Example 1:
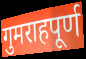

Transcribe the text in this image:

गुमराहपूर्ण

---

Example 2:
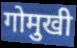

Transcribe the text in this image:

गोमुखी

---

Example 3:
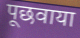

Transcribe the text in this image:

पूछवाया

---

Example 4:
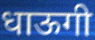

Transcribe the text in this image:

धाऊगी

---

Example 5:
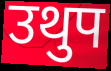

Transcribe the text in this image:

उथुप